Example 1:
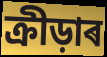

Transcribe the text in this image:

ক্ৰীড়াৰ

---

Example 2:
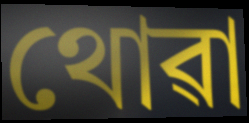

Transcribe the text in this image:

থোৱা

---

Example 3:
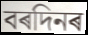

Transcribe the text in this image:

বৰদিনৰ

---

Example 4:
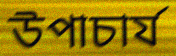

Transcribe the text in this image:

উপাচাৰ্য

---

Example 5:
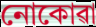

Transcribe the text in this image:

নোকোৱা